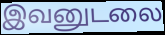
இவனுடலை